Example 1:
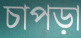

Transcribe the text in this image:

চাপড়া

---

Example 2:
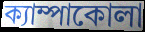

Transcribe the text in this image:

ক্যাম্পাকোলা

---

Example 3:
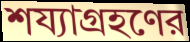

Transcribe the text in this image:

শয্যাগ্রহণের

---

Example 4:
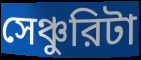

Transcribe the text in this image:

সেঞ্চুরিটা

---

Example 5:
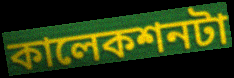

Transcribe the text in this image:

কালেকশনটা